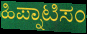
ಹಿಪ್ನಾಟಿಸಂ